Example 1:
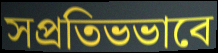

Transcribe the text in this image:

সপ্রতিভভাবে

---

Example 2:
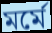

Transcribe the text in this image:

মর্মে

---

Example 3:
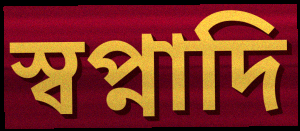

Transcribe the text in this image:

স্বপ্নাদি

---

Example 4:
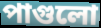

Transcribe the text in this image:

পাগুলো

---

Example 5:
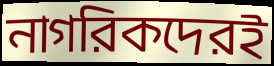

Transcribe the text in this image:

নাগরিকদেরই